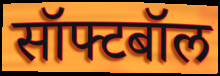
सॉफ्टबॉल